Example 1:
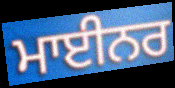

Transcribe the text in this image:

ਮਾਈਨਰ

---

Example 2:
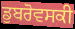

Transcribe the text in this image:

ਡੁਬਰੋਵਸਕੀ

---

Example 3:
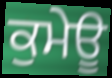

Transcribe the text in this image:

ਕੁਮੇਊ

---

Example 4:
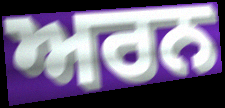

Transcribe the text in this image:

ਅਰਨ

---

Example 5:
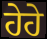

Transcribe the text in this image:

ਹੇਹੇ